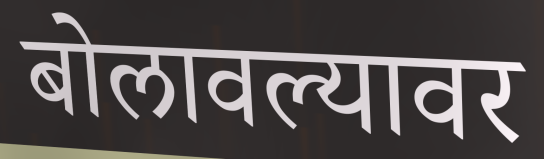
बोलावल्यावर